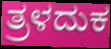
ತ್ರಳದುಕ